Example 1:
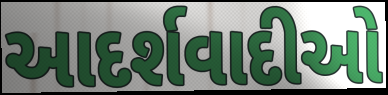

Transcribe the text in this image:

આદર્શવાદીઓ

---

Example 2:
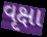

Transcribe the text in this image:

વૃક્ષા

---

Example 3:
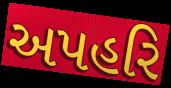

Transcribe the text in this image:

અપહરિ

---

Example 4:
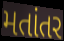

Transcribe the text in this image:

મતાંતર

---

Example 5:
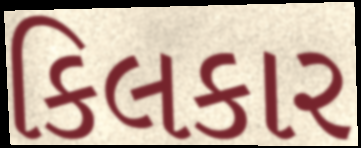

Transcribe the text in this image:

કિલકાર